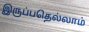
இருப்பதெல்லாம்